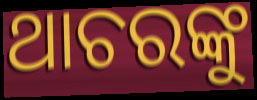
ଥାଚରଙ୍କୁ